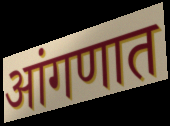
आंगणात